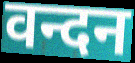
वन्दन